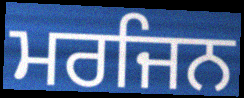
ਮਰਜਿਨ